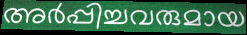
അർപ്പിച്ചവരുമായ